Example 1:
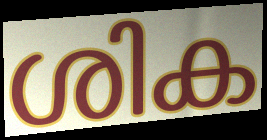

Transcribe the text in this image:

ശിക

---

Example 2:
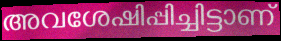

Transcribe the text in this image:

അവശേഷിപ്പിച്ചിട്ടാണ്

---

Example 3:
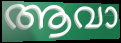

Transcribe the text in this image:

ആവാ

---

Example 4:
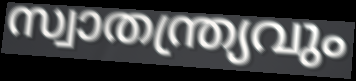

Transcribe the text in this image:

സ്വാതന്ത്ര്യവും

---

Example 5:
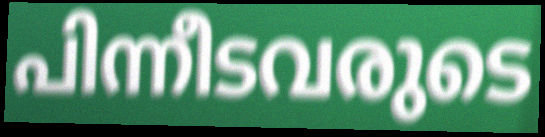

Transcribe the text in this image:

പിന്നീടവരുടെ